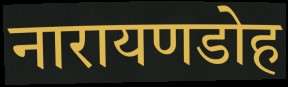
नारायणडोह